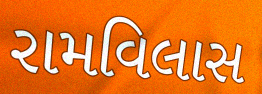
રામવિલાસ